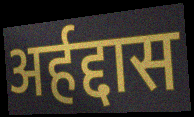
अर्हद्दास